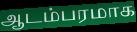
ஆடம்பரமாக